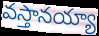
వస్తానయ్యా